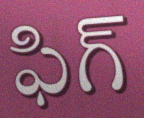
ఫిగ్